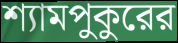
শ্যামপুকুরের